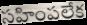
సహింపలేక